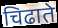
चिढाते